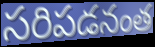
సరిపడనంత